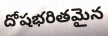
దోషభరితమైన